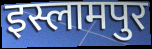
इस्लामपुर